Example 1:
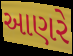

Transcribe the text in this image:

આણરે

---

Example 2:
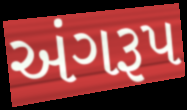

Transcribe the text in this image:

અંગરૂપ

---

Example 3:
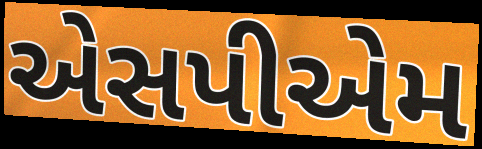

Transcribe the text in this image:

એસપીએમ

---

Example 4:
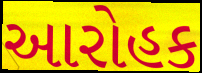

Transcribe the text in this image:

આરોહક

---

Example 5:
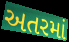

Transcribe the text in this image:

અતરમાં